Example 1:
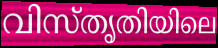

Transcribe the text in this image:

വിസ്തൃതിയിലെ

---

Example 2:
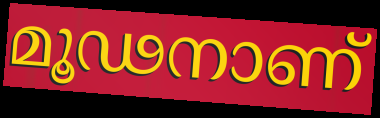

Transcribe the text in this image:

മൂഢനാണ്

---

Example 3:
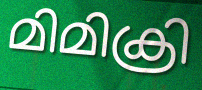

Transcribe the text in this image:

മിമിക്രി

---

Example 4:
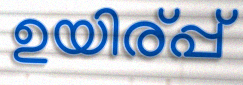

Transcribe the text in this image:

ഉയിര്പ്പ്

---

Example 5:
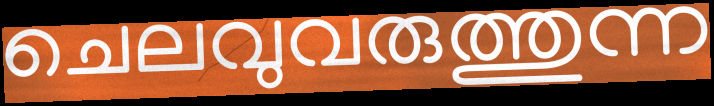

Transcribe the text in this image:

ചെലവുവരുത്തുന്ന